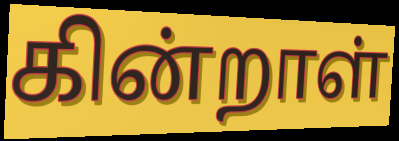
கின்றாள்